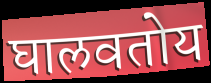
घालवतोय